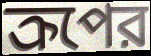
ক্রপের